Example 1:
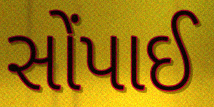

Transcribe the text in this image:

સોંપાઈ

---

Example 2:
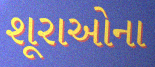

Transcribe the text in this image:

શૂરાઓના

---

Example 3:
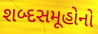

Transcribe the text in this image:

શબ્દસમૂહોનો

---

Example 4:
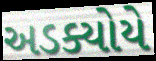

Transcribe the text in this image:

અડક્યોયે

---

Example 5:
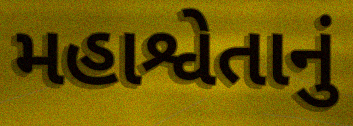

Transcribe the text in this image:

મહાશ્વેતાનું